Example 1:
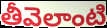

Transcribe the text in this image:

తీవెలాంటి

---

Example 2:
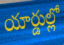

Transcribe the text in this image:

యార్డుల్లో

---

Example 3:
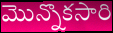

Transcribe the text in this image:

మొన్నొకసారి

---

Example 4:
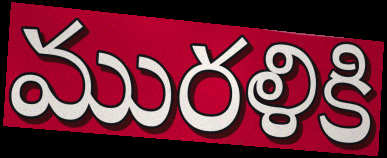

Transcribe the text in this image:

మురళికి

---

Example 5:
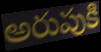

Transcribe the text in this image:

అరుపుకి